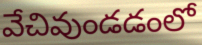
వేచివుండడంలో